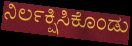
ನಿರ್ಲಕ್ಷಿಸಿಕೊಂಡು